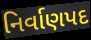
નિર્વાણપદ